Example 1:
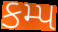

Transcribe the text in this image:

કમ્પ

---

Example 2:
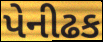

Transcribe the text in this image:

પેનીઢક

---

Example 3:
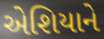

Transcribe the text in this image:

એશિયાને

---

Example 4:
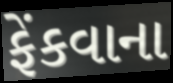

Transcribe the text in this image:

ફેંકવાના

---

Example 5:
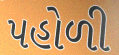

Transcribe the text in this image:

પહોળી